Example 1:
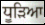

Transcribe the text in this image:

ਧੂੜਿਆ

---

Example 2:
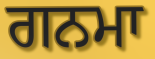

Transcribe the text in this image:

ਗਨਮਾ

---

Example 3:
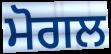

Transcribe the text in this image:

ਮੋਗਲ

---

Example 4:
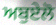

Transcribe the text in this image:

ਅਬੁਏਲੋ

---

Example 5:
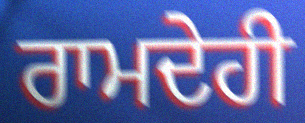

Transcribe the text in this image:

ਰਾਮਦੇਹੀ